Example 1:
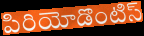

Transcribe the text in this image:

పిరియోడొంటిస్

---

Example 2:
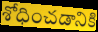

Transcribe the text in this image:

శోధించడానికి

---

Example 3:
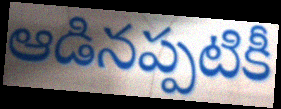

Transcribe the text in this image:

ఆడినప్పటికీ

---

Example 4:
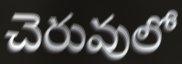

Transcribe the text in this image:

చెరువులో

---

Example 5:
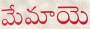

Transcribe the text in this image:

మేమాయె